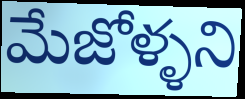
మేజోళ్ళని